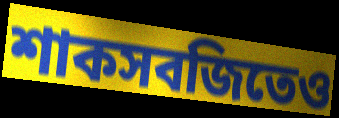
শাকসবজিতেও